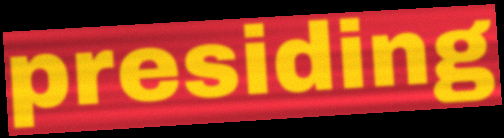
presiding